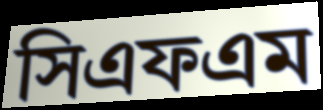
সিএফএম